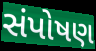
સંપોષણ